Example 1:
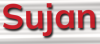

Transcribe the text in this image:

Sujan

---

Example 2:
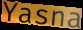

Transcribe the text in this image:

Yasna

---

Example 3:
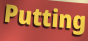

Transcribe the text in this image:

Putting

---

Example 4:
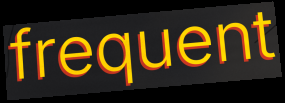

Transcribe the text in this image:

frequent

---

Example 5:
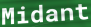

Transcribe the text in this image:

Midant